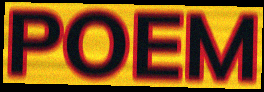
POEM